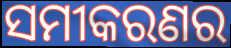
ସମୀକରଣର